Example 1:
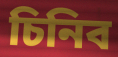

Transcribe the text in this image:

চিনিব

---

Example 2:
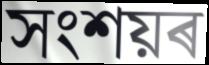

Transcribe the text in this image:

সংশয়ৰ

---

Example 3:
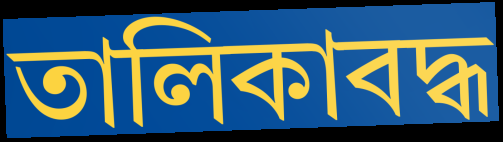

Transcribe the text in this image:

তালিকাবদ্ধ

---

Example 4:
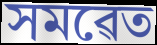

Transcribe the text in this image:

সমৱেত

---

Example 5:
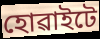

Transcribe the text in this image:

হোৱাইটে